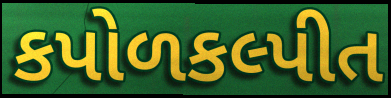
કપોળકલ્પીત